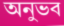
অনুভব